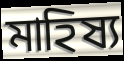
মাহিষ্য